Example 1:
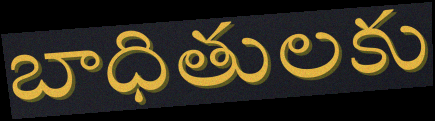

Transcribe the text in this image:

బాధితులకు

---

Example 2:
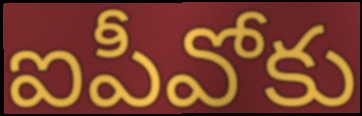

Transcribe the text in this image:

ఐపీవోకు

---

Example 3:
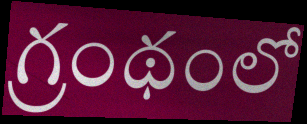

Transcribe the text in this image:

గ్రంథంలో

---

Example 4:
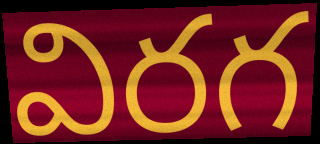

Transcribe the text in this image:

విరగ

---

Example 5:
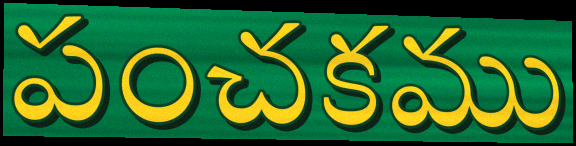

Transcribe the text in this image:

పంచకము